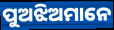
ପୁଅଝିଅମାନେ